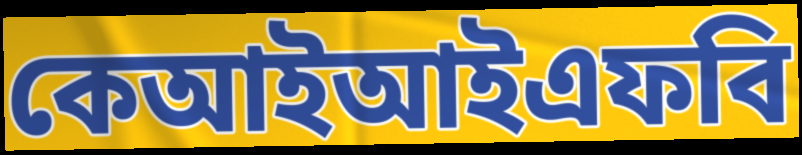
কেআইআইএফবি